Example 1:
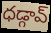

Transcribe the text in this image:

ధడ్గావ్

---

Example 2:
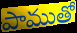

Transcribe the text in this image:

పాముతో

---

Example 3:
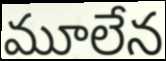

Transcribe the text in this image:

మూలేన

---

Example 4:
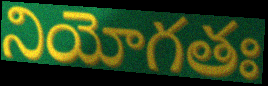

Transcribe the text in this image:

నియోగతః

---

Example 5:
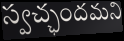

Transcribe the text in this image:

స్వచ్ఛందమని